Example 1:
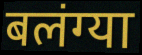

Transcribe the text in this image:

बलंग्या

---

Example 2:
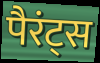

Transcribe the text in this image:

पैरंट्स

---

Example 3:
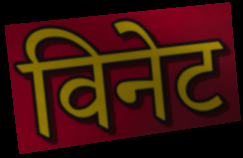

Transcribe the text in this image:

विनेट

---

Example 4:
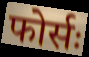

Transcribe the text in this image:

फोर्सः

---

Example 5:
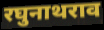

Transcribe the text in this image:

रघुनाथराव